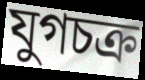
যুগচক্র